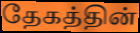
தேகத்தின்